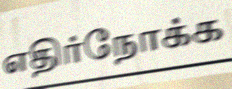
எதிர்நோக்க